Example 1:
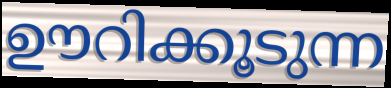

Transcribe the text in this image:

ഊറിക്കൂടുന്ന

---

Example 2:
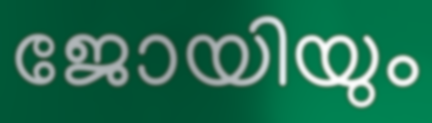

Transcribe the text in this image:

ജോയിയും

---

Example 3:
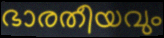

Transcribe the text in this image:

ഭാരതീയവും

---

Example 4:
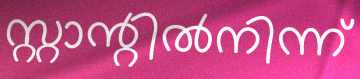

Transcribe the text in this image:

സ്റ്റാന്റിൽനിന്ന്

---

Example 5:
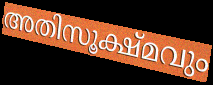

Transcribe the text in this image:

അതിസൂക്ഷ്മവും